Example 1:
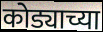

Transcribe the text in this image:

कोड्याच्या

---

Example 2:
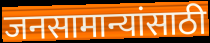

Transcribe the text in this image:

जनसामान्यांसाठी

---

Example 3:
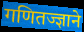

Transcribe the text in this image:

गणितज्ज्ञाने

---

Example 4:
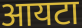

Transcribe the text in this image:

आयटा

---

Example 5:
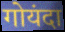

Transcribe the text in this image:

गोयंदा